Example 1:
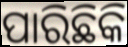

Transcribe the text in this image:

ପାରିଛିକି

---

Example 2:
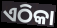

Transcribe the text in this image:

ଏଠିକା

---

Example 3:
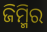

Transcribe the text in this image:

ଜିମ୍ମିର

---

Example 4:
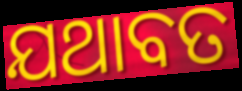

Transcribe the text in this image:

ଯଥାବତ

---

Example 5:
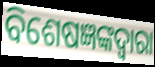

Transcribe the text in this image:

ବିଶେଷଜ୍ଞଙ୍କଦ୍ୱାରା